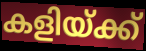
കളിയ്ക്ക്